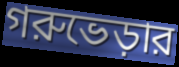
গরুভেড়ার